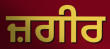
ਜ਼ਗੀਰ